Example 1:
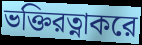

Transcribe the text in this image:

ভক্তিরত্নাকরে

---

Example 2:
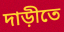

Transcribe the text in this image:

দাড়ীতে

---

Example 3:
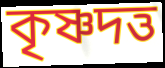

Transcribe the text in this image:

কৃষ্ণদত্ত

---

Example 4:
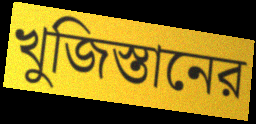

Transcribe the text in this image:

খুজিস্তানের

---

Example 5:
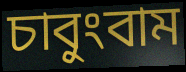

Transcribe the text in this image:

চাবুংবাম